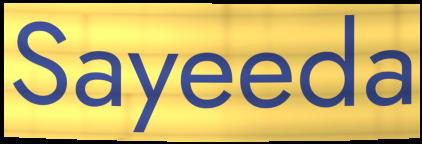
Sayeeda